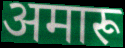
अमारू